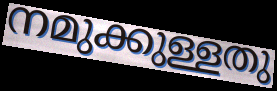
നമുക്കുള്ളതു